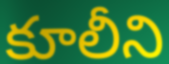
కూలీని